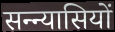
सन्न्यासियों